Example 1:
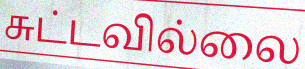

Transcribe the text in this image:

சுட்டவில்லை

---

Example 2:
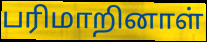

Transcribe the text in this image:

பரிமாறினாள்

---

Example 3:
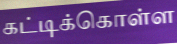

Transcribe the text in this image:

கட்டிக்கொள்ள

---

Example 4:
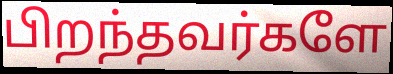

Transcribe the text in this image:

பிறந்தவர்களே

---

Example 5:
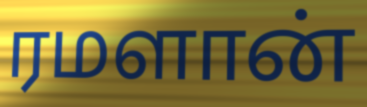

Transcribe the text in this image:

ரமளான்